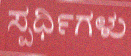
ಸ್ಪರ್ಧಿಗಳು